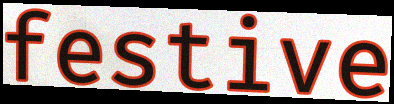
festive